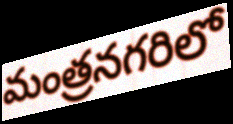
మంత్రనగరిలో